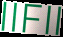
IIFII